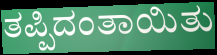
ತಪ್ಪಿದಂತಾಯಿತು